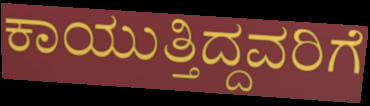
ಕಾಯುತ್ತಿದ್ದವರಿಗೆ